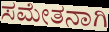
ಸಮೇತನಾಗಿ